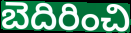
బెదిరించి